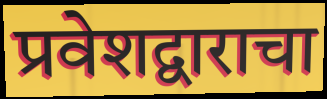
प्रवेशद्वाराचा